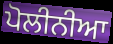
ਪੋਲੀਨੀਆ